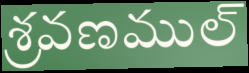
శ్రవణముల్